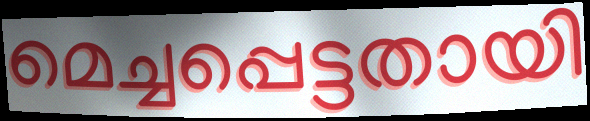
മെച്ചപ്പെട്ടതായി